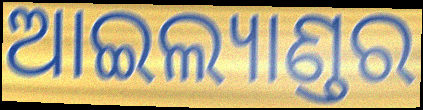
ଆଇଲ୍ୟାଣ୍ଡର